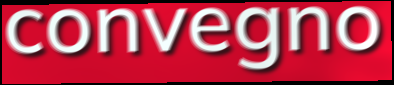
convegno